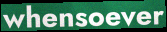
whensoever